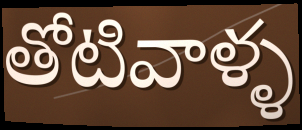
తోటివాళ్ళ